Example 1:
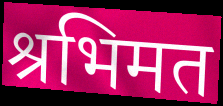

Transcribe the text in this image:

श्रभिमत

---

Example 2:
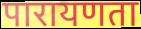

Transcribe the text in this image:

पारायणता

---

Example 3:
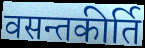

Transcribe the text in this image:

वसन्तकीर्ति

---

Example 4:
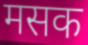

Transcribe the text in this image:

मसक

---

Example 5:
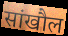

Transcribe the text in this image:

सांखौल